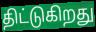
திட்டுகிறது